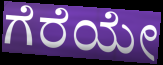
ಗೆರೆಯೇ